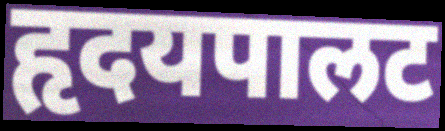
हृदयपालट